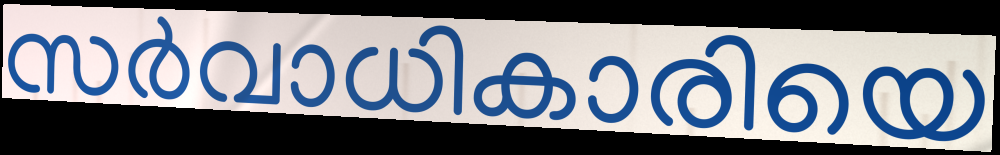
സർവാധികാരിയെ